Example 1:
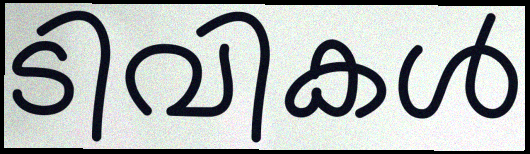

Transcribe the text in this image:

ടിവികൾ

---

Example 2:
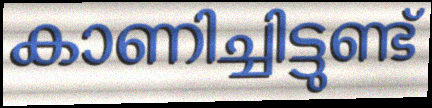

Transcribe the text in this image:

കാണിച്ചിട്ടുണ്ട്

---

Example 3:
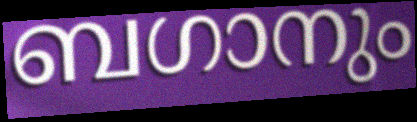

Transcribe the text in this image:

ബഗാനും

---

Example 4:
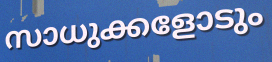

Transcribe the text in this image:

സാധുക്കളോടും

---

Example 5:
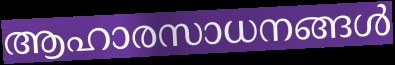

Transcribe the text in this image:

ആഹാരസാധനങ്ങൾ